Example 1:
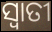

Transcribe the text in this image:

ସ୍ୱାତୀ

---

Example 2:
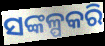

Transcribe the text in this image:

ସଙ୍କଳ୍ପକରି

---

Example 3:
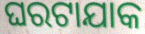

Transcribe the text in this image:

ଘରଟାଯାକ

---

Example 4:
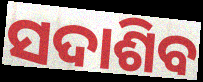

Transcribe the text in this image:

ସଦାଶିବ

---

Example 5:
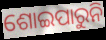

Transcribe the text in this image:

ଶୋଇପାରୁନି